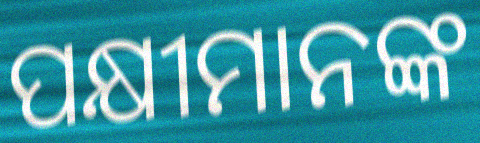
ପକ୍ଷୀମାନଙ୍କ